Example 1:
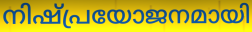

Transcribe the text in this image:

നിഷ്പ്രയോജനമായി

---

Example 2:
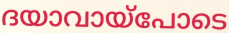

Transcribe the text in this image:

ദയാവായ്പോടെ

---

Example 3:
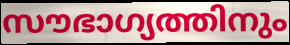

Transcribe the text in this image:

സൗഭാഗ്യത്തിനും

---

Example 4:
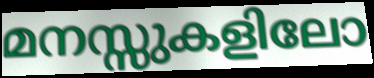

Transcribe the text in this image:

മനസ്സുകളിലോ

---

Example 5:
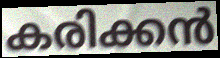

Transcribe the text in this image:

കരിക്കൻ